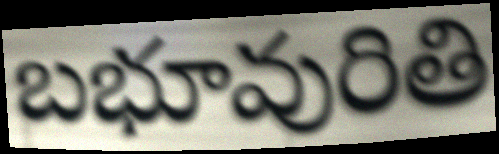
బభూవురితి